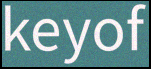
keyof